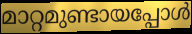
മാറ്റമുണ്ടായപ്പോൾ